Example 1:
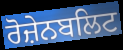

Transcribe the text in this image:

ਰੋਜ਼ੇਨਬਲਿਟ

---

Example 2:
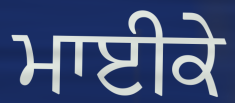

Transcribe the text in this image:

ਮਾਈਕੇ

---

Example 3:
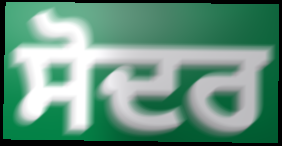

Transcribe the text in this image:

ਸੋਦਰ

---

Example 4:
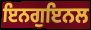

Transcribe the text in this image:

ਇਨਗੁਇਨਲ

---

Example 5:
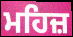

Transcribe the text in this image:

ਮਹਿਜ਼